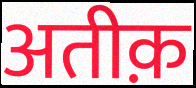
अतीक़